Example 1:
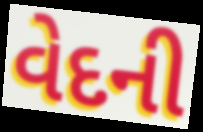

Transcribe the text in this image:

વેદની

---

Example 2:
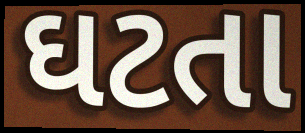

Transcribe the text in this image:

ઘટતા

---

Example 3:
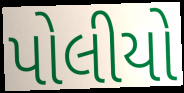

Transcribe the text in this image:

પોલીયો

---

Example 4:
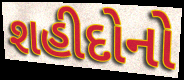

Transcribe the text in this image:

શહીદોનો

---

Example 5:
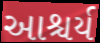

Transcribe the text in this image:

આશ્ચર્ય